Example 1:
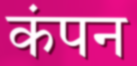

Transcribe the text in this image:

कंपन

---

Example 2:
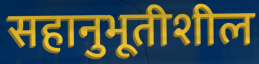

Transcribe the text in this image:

सहानुभूतीशील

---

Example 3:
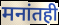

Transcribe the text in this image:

मनांतही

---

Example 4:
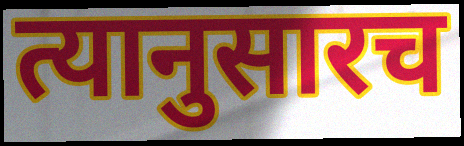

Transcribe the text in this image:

त्यानुसारच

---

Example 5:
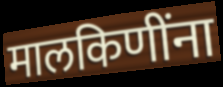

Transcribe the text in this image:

मालकिणींना